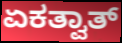
ಏಕತ್ವಾತ್